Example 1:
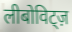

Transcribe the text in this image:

लीबोविट्ज़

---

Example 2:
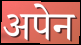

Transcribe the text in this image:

अपेन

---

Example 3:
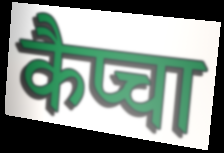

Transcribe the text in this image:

कैप्चा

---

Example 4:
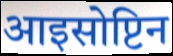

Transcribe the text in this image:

आइसोप्टिन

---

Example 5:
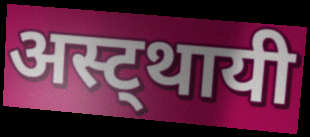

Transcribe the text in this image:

अस्ट्थायी